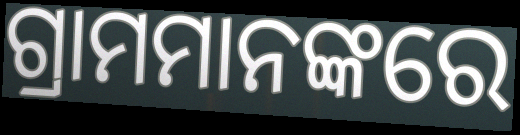
ଗ୍ରାମମାନଙ୍କରେ